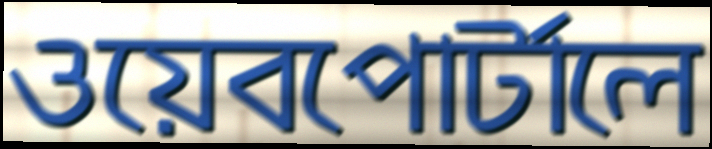
ওয়েবপোর্টালে